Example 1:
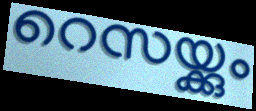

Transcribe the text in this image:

റെസയ്ക്കും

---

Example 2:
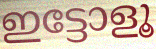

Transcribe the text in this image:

ഇട്ടോളൂ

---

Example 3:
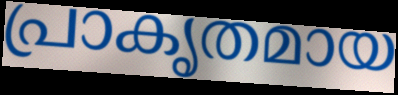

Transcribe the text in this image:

പ്രാകൃതമായ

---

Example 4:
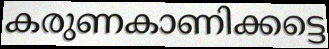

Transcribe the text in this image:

കരുണകാണിക്കട്ടെ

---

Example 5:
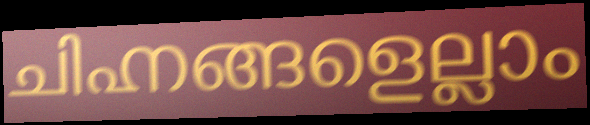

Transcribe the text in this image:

ചിഹ്നങ്ങളെല്ലാം